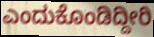
ಎಂದುಕೊಂಡಿದ್ದೀರಿ